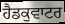
ਹੈਡਕੁਵਾਟਰ